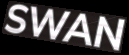
SWAN